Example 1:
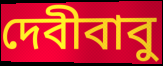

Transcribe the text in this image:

দেবীবাবু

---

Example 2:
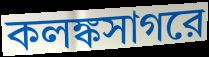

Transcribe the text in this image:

কলঙ্কসাগরে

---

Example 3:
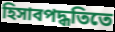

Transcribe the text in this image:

হিসাবপদ্ধতিতে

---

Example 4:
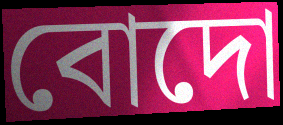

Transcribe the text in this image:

বোদো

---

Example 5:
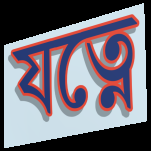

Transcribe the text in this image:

যত্নে